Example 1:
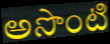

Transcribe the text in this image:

అసొంటి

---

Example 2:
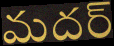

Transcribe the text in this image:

మదర్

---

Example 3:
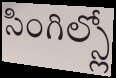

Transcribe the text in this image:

సింగిల్స్లో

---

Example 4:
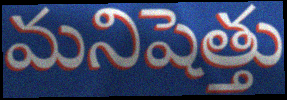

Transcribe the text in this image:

మనిషెత్తు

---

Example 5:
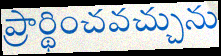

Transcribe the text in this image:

ప్రార్థించవచ్చును